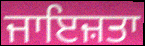
ਜਾਇਜ਼ਤਾ